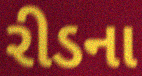
રીડના